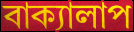
বাক্যালাপ